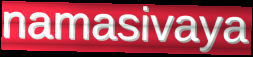
namasivaya